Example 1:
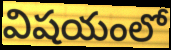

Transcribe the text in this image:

విషయంలో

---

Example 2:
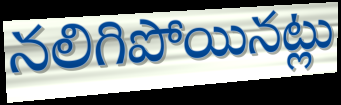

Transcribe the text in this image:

నలిగిపోయినట్లు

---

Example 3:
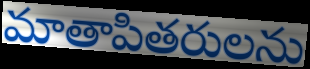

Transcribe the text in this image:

మాతాపితరులను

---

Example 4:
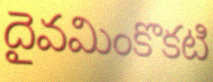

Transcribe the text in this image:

దైవమింకొకటి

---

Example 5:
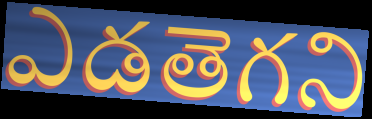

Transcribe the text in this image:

ఎడతెగని